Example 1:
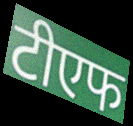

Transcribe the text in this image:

टीएफ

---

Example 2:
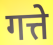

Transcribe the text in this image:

गत्ते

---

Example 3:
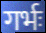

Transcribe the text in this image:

गर्भः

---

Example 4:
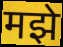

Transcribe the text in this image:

मझे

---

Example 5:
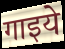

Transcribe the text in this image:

गाइये